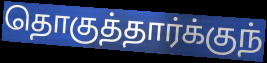
தொகுத்தார்க்குந்